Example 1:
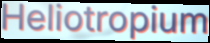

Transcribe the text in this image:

Heliotropium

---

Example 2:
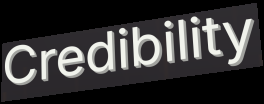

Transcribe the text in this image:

Credibility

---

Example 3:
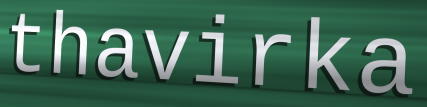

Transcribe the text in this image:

thavirka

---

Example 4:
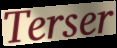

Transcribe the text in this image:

Terser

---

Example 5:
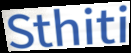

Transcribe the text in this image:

Sthiti